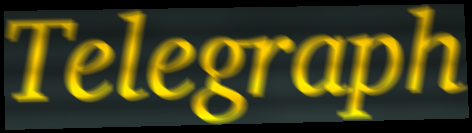
Telegraph